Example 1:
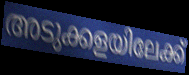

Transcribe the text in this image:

അടുക്കളയിലേക്ക്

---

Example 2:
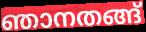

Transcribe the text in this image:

ഞാനതങ്ങ്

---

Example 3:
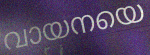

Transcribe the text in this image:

വായനയെ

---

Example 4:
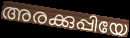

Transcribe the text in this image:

അരക്കുപ്പിയേ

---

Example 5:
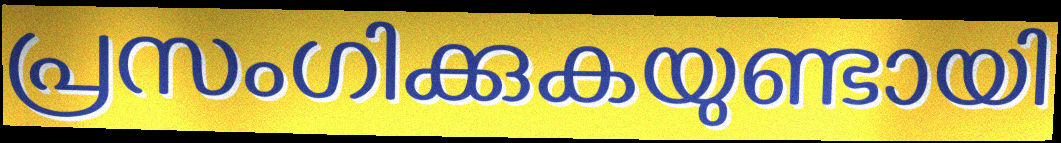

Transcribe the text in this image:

പ്രസംഗിക്കുകയുണ്ടായി